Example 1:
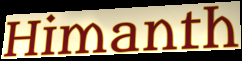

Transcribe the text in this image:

Himanth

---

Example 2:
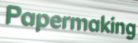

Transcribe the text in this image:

Papermaking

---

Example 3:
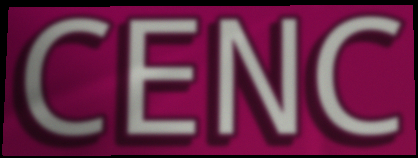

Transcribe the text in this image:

CENC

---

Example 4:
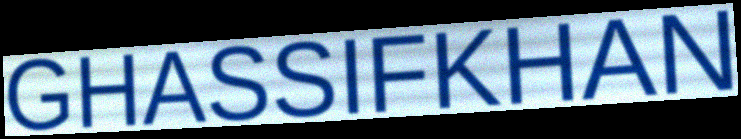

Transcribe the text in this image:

GHASSIFKHAN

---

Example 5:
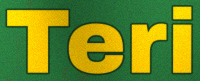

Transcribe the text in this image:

Teri